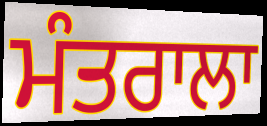
ਮੰਤਰਾਲਾ